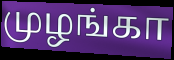
முழங்கா